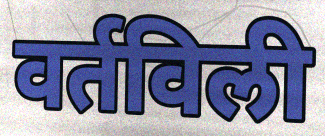
वर्तविली